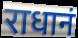
राधानं